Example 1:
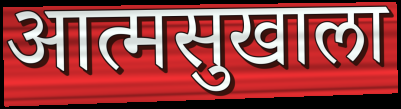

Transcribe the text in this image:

आत्मसुखाला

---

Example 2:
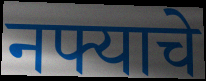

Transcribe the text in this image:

नफ्याचे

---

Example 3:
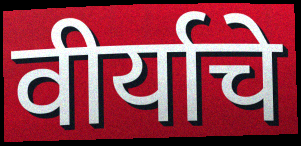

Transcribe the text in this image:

वीर्याचे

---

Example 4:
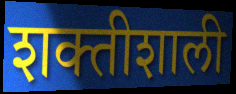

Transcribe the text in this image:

शक्तीशाली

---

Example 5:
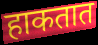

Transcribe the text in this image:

हाकतात